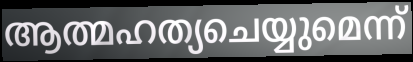
ആത്മഹത്യചെയ്യുമെന്ന്